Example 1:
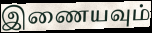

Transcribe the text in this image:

இணையவும்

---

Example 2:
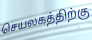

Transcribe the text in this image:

செயலகத்திற்கு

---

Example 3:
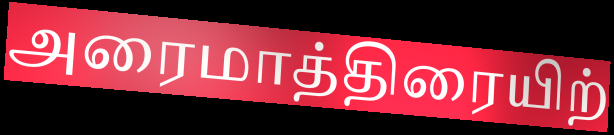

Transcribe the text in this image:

அரைமாத்திரையிற்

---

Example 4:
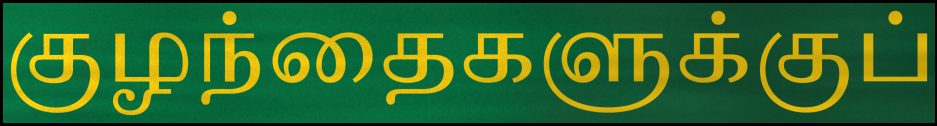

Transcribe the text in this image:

குழந்தைகளுக்குப்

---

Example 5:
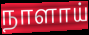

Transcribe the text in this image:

நாளாய்